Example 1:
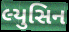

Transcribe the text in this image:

લ્યુસિન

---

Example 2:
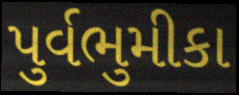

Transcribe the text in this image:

પુર્વભુમીકા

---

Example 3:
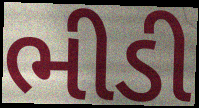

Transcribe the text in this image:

ભીડી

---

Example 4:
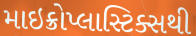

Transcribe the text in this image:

માઇક્રોપ્લાસ્ટિક્સથી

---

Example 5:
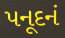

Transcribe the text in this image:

પનૂદનં